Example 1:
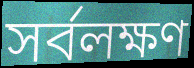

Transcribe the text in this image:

সর্বলক্ষণ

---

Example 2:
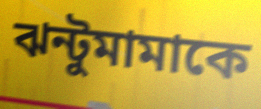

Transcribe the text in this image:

ঝন্টুমামাকে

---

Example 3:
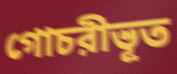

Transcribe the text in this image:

গোচরীভূত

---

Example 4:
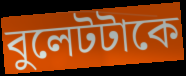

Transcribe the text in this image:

বুলেটটাকে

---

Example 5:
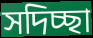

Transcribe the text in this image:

সদিচ্ছা